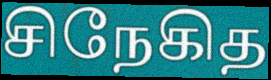
சிநேகித